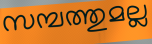
സമ്പത്തുമല്ല